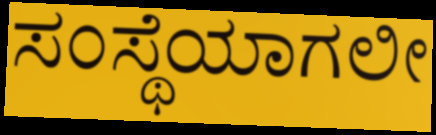
ಸಂಸ್ಥೆಯಾಗಲೀ